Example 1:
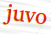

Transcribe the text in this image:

juvo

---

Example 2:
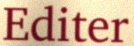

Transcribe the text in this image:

Editer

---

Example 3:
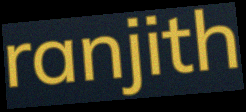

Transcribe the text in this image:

ranjith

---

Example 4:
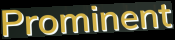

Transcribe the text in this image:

Prominent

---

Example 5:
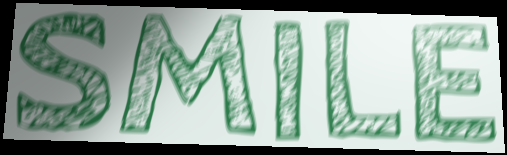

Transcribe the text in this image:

SMILE